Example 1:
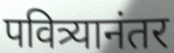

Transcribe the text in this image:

पवित्र्यानंतर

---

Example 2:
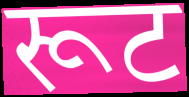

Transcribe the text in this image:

रूट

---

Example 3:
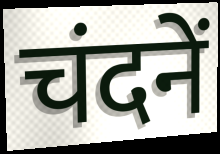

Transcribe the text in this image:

चंदनें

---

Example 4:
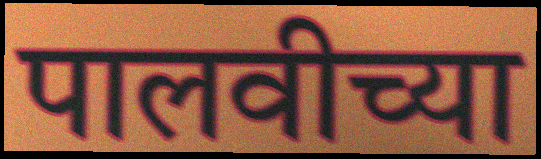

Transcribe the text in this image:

पालवीच्या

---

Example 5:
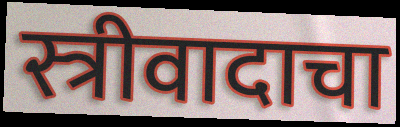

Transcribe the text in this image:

स्त्रीवादाचा